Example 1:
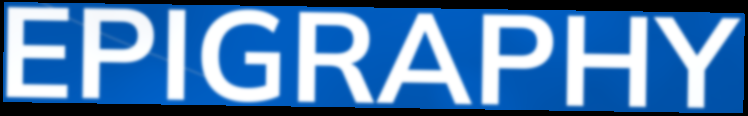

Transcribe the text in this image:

EPIGRAPHY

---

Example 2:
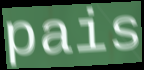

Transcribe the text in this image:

pais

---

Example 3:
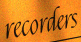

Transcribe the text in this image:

recorders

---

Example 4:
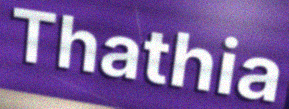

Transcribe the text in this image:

Thathia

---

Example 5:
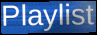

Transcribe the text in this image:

Playlist